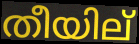
തീയില്